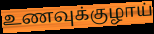
உணவுக்குழாய்